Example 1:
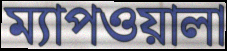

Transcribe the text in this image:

ম্যাপওয়ালা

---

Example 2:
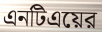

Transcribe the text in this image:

এনটিএয়ের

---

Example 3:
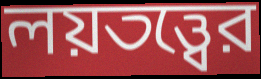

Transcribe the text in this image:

লয়তত্ত্বের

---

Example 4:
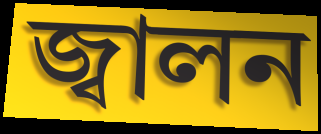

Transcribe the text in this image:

জ্বালন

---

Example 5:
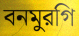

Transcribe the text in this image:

বনমুরগি